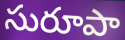
సురూపా